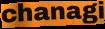
chanagi